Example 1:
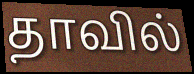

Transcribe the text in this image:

தாவில்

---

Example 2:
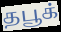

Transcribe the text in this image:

தபூக்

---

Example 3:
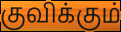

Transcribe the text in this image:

குவிக்கும்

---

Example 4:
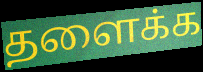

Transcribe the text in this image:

தளைக்க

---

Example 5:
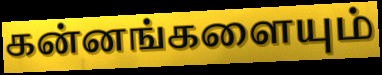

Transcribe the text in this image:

கன்னங்களையும்